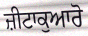
ਜ਼ੀਟਾਕੁਆਰੋ